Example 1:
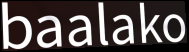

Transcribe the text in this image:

baalako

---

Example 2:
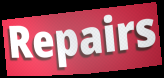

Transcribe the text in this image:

Repairs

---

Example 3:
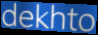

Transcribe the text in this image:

dekhto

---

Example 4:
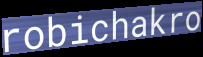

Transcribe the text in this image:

robichakro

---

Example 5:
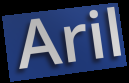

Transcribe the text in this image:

Aril